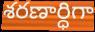
శరణార్ధిగా